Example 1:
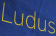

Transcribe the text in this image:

Ludus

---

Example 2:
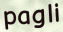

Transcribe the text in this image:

pagli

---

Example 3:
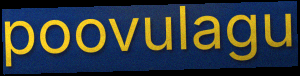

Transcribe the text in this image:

poovulagu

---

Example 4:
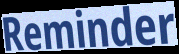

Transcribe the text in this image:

Reminder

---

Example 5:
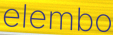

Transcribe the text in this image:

elembo